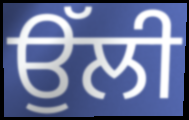
ਉੱਲੀ